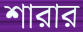
শারার